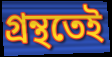
গ্ৰন্থতেই